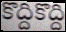
కొద్దికొద్ది